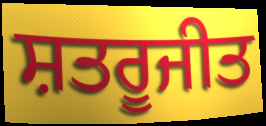
ਸ਼ਤਰੂਜੀਤ